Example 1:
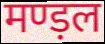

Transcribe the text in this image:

मण्ड़ल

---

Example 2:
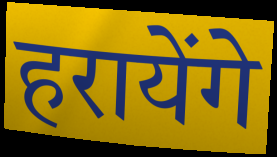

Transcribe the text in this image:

हरायेंगे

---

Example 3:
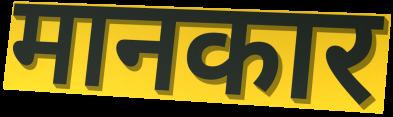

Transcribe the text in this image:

मानकार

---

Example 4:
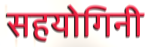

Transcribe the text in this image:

सहयोगिनी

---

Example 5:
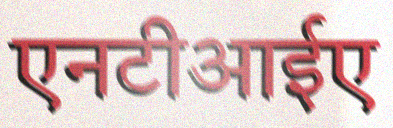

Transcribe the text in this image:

एनटीआईए